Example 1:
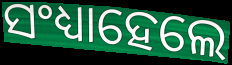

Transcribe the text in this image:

ସଂଧ୍ୟାହେଲେ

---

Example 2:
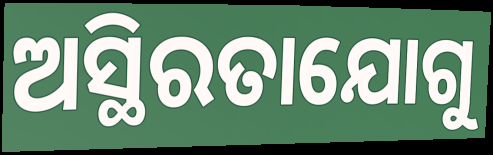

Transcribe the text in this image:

ଅସ୍ଥିରତାଯୋଗୁ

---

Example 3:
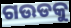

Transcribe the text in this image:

ଗଉଡକୁ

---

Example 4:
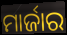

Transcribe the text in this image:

ମାର୍ଜାର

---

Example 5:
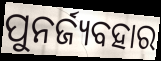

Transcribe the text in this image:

ପୁନର୍ଜ୍ୟବହାର